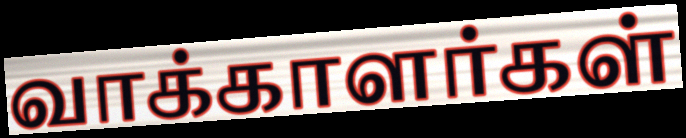
வாக்காளர்கள்